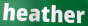
heather